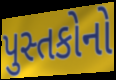
પુસ્તકોનો